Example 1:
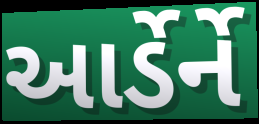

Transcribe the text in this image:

આર્ડેર્ને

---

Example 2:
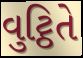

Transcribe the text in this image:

વુટ્ઠિતે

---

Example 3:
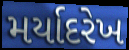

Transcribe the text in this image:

મર્યાદરેખ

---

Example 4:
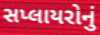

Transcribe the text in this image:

સપ્લાયરોનું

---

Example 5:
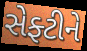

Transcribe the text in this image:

સેફ્ટીને